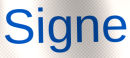
Signe